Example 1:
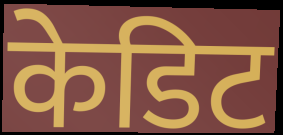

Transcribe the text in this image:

केडिट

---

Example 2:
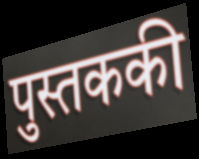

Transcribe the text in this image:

पुस्तककी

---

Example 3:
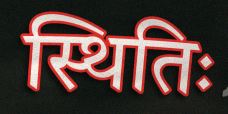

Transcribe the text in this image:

स्थितिः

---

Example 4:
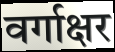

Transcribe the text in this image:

वर्गाक्षर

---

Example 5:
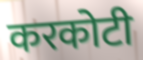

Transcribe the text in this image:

करकोटी